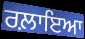
ਰਲ਼ਾਇਆ